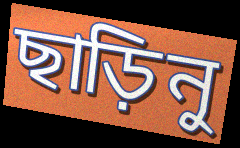
ছাড়িনু